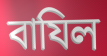
বাযিল